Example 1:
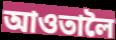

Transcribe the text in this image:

আওতালৈ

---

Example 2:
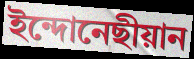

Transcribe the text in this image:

ইন্দোনেছীয়ান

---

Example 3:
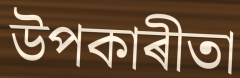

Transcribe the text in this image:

উপকাৰীতা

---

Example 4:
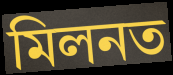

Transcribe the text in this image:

মিলনত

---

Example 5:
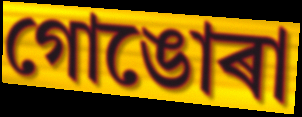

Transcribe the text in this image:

গোঙোৰা